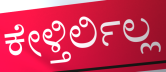
ಕೇಳ್ತಿರ್ಲಿಲ್ಲ